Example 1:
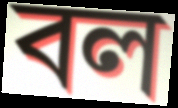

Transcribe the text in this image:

বল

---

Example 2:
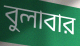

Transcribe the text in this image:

বুলাবার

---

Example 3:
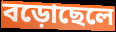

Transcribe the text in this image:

বড়োছেলে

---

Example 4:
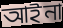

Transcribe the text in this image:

আইনা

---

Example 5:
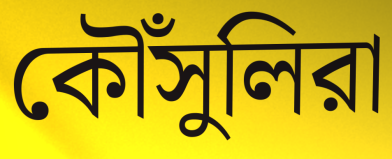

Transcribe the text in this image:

কৌঁসুলিরা